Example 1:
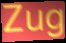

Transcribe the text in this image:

Zug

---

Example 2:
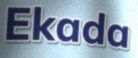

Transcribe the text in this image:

Ekada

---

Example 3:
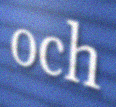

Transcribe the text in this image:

och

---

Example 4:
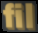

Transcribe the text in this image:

fil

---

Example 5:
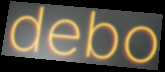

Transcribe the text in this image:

debo